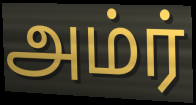
அம்ர்